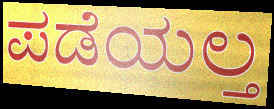
ಪಡೆಯಲ್ತ